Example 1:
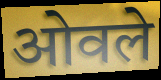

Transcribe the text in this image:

ओवले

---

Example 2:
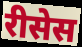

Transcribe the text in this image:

रीसेस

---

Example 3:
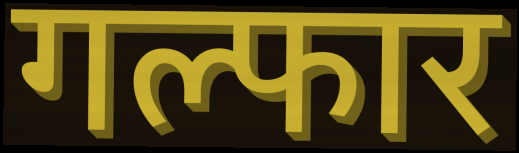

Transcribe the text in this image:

गल्फार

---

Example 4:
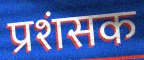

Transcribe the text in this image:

प्रशंसक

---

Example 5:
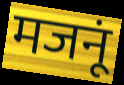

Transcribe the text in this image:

मजनूं